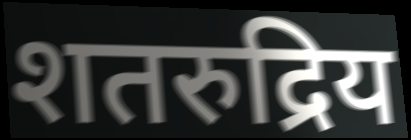
शतरुद्रिय